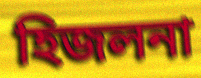
হিজলনা